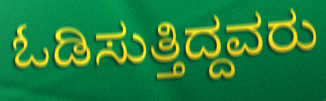
ಓಡಿಸುತ್ತಿದ್ದವರು